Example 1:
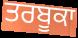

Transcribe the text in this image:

ਤਰਬੂਕਾ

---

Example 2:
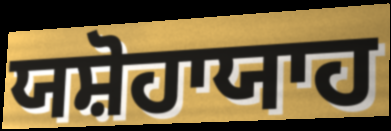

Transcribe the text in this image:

ਯਸ਼ੋਹਾਯਾਹ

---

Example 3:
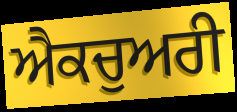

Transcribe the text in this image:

ਐਕਚੁਅਰੀ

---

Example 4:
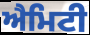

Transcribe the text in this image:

ਐਮਿਟੀ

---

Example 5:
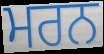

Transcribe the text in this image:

ਮਰਨ